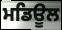
ਮਡਿਊਲ